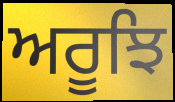
ਅਰੂਝਿ